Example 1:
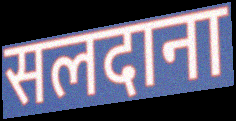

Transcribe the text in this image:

सलदाना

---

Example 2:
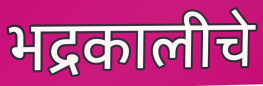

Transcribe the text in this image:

भद्रकालीचे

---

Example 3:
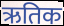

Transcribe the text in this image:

ऋतिक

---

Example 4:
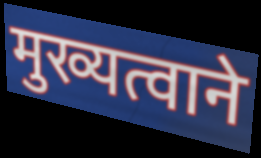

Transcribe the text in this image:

मुख्यत्वाने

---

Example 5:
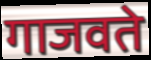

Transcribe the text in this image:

गाजवते